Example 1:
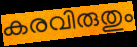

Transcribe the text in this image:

കരവിരുതും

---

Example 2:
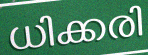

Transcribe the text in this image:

ധിക്കരി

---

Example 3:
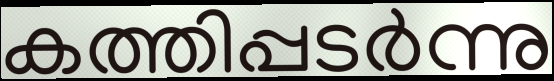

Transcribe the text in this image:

കത്തിപ്പടർന്നു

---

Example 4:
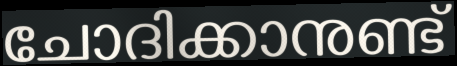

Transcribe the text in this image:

ചോദിക്കാനുണ്ട്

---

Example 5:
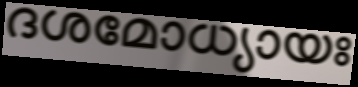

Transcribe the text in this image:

ദശമോധ്യായഃ